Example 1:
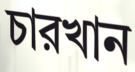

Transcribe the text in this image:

চারখান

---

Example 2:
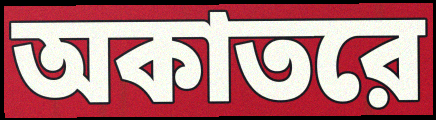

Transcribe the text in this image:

অকাতরে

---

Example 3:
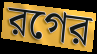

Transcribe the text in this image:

রগের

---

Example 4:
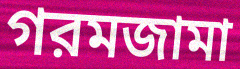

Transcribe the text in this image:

গরমজামা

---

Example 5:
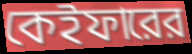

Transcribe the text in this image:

কেইফারের